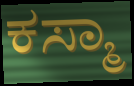
ಕಸ್ಮಾ